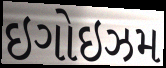
ઇગોઇઝમ